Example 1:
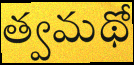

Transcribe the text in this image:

త్వమథో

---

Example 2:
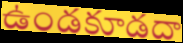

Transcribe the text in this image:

ఉండకూడదా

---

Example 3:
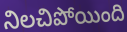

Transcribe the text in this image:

నిలచిపోయింది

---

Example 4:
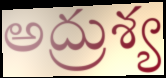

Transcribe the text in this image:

అద్రుశ్య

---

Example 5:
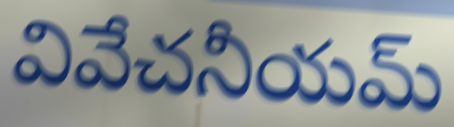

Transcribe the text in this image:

వివేచనీయమ్